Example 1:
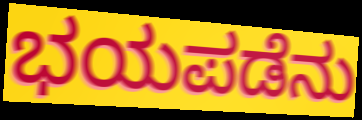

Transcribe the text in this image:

ಭಯಪಡೆನು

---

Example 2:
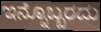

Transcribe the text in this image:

ಇನ್ನೊಬ್ಬರದು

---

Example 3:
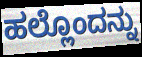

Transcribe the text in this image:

ಹಲ್ಲೊಂದನ್ನು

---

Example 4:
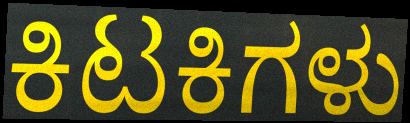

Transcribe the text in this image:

ಕಿಟಕಿಗಳು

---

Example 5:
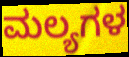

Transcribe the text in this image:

ಮಲ್ಯಗಳ